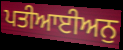
ਪਤੀਆਈਅਨੁ